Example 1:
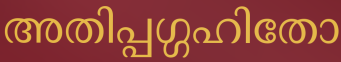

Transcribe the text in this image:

അതിപ്പഗ്ഗഹിതോ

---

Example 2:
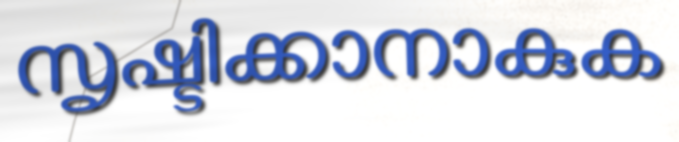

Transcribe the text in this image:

സൃഷ്ടിക്കാനാകുക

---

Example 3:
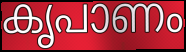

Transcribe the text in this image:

കൃപാണം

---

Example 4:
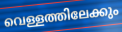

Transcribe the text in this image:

വെള്ളത്തിലേക്കും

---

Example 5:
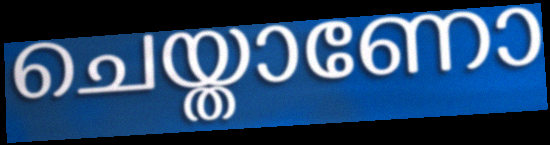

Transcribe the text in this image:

ചെയ്താണോ